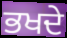
ਭਖਦੇ